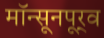
मॉन्सूनपूर्व